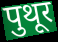
पुथूर